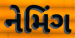
નેમિંગ